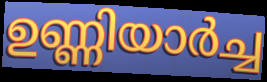
ഉണ്ണിയാർച്ച